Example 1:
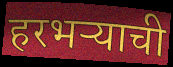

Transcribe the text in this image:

हरभऱ्याची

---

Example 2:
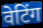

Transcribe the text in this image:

वेटिंग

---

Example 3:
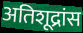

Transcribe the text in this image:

अतिशूद्रांस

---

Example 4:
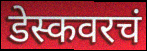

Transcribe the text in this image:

डेस्कवरचं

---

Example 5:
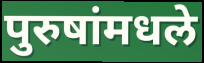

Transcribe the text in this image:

पुरुषांमधले